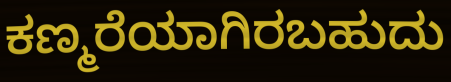
ಕಣ್ಮರೆಯಾಗಿರಬಹುದು